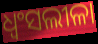
ଧ୍ବଂସଲୀଳା